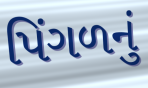
પિંગળનું